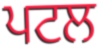
ਪਟਲ